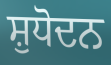
ਸ਼ੁਧੋਦਨ